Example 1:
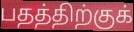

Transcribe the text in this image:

பதத்திற்குக்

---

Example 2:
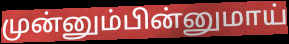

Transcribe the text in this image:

முன்னும்பின்னுமாய்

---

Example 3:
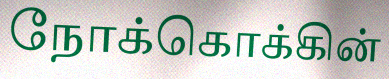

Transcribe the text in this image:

நோக்கொக்கின்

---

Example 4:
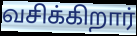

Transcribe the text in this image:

வசிக்கிறார்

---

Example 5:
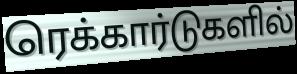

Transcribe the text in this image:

ரெக்கார்டுகளில்